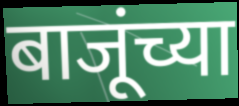
बाजूंच्या